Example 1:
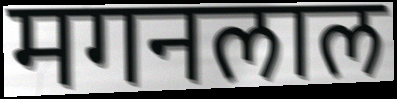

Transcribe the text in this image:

मगनलाल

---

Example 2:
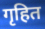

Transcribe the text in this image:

गृहित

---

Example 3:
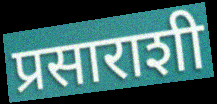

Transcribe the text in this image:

प्रसाराशी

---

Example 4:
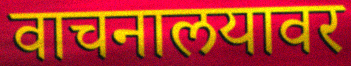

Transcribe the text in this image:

वाचनालयावर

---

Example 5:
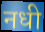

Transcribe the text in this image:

नधी